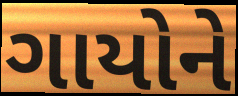
ગાયોને